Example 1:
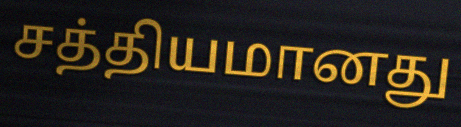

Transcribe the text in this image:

சத்தியமானது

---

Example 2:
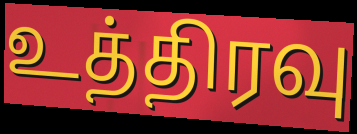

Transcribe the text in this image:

உத்திரவு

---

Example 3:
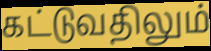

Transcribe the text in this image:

கட்டுவதிலும்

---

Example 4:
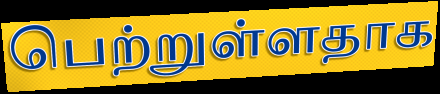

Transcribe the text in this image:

பெற்றுள்ளதாக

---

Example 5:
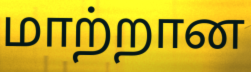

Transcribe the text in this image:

மாற்றான